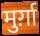
मुर्ग़ा